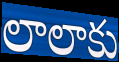
లాలాకు